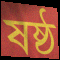
ষষ্ঠ